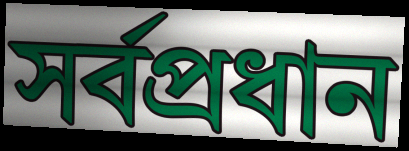
সৰ্বপ্ৰধান